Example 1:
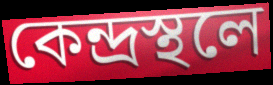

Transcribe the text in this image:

কেন্দ্রস্থলে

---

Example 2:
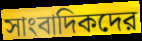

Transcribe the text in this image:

সাংবাদিকদের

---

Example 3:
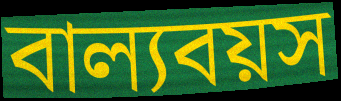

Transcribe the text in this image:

বাল্যবয়স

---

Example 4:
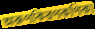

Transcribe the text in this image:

অরুণকিরণকণিকা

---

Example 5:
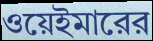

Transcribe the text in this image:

ওয়েইমারের